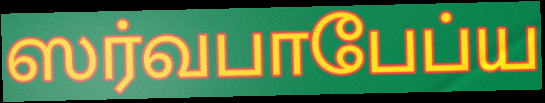
ஸர்வபாபேப்ய